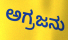
ಅಗ್ರಜನು